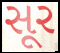
સૂર